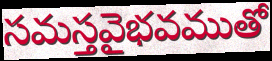
సమస్తవైభవముతో